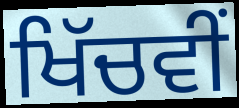
ਖਿੱਚਵੀਂ